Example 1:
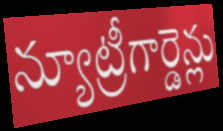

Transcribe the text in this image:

న్యూట్రీగార్డెన్లు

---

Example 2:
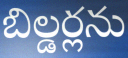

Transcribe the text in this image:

బిల్డర్లను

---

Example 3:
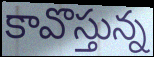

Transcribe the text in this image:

కావొస్తున్న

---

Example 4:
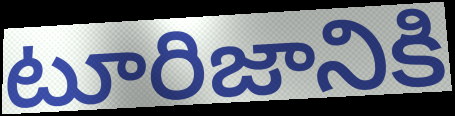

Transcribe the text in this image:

టూరిజానికి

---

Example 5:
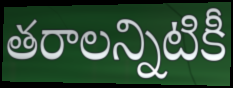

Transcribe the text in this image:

తరాలన్నిటికీ